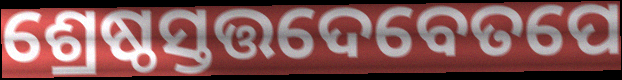
ଶ୍ରେଷ୍ଠସ୍ତତ୍ତଦେବେତପେ